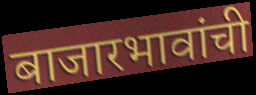
बाजारभावांची